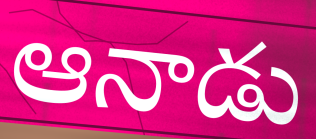
ఆనాడు